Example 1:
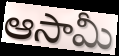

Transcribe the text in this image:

ఆసామీ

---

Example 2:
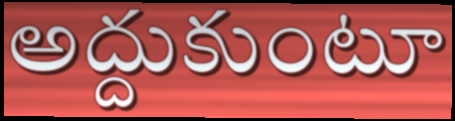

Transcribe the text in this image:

అద్దుకుంటూ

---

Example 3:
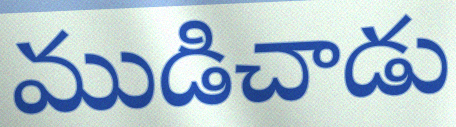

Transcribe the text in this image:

ముడిచాడు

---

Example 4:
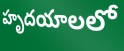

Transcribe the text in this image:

హృదయాలలో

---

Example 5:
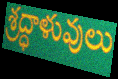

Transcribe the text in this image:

శ్రద్ధాళువులు